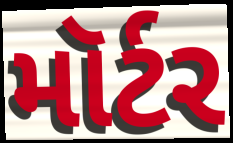
મૉર્ટર